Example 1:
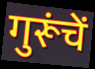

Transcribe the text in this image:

गुरूंचें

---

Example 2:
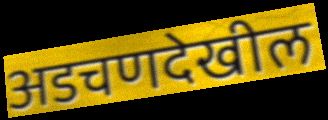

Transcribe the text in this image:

अडचणदेखील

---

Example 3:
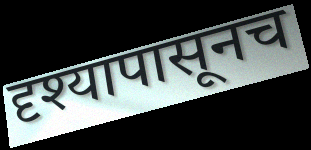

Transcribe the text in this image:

दृश्यापासूनच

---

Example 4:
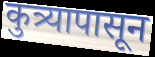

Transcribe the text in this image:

कुत्र्यापासून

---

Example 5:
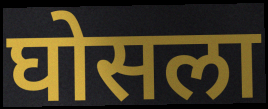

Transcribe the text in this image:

घोसला